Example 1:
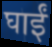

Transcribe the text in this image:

घाईं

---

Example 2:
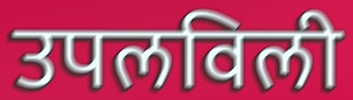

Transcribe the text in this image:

उपलविली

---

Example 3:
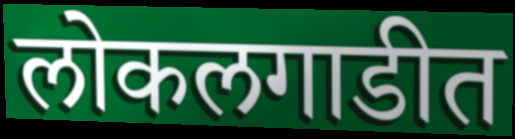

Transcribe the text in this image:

लोकलगाडीत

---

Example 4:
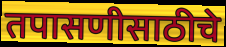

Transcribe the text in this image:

तपासणीसाठीचे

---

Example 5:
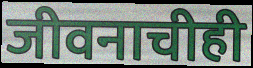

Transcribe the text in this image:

जीवनाचीही